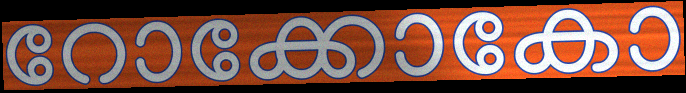
റോക്കോകോ